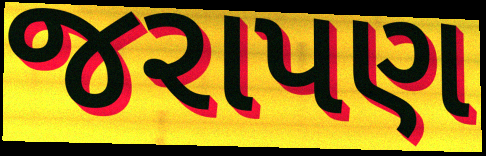
જરાપણ